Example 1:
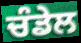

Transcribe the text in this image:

ਚੰਡੇਲ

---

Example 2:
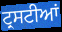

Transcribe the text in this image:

ਟ੍ਰਸਟੀਆਂ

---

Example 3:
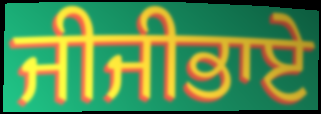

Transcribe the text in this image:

ਜੀਜੀਭਾਏ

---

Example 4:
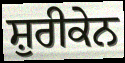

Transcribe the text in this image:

ਸ਼ੁਰੀਕੇਨ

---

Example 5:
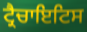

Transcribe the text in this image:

ਟ੍ਰੈਚਾਇਟਿਸ